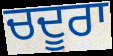
ਚਦੂਰਾ